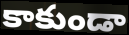
కాకుండా